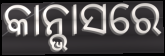
କାନ୍ଭାସରେ